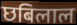
छबिलाल